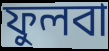
ফুলবা